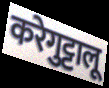
करेगुट्टालू